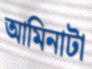
আমিনাটা